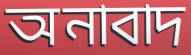
অনাবাদ